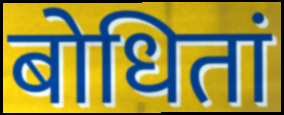
बोधितां